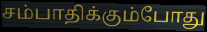
சம்பாதிக்கும்போது